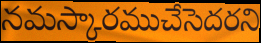
నమస్కారముచేసెదరని